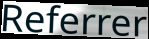
Referrer